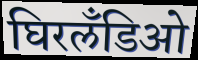
घिरलँडिओ